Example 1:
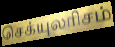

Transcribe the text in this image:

செக்யுலரிசம்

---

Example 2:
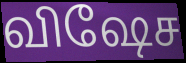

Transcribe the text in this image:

விஷேச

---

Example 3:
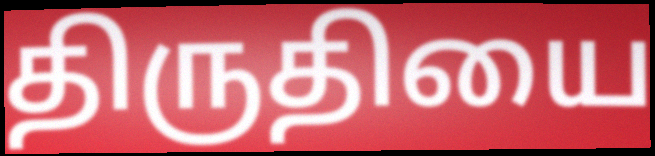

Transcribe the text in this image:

திருதியை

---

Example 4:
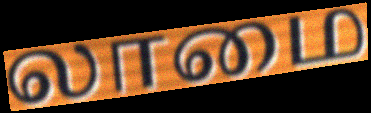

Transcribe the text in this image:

லாமை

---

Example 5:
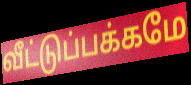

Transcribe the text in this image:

வீட்டுப்பக்கமே